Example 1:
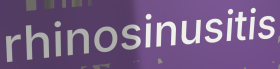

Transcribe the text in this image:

rhinosinusitis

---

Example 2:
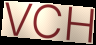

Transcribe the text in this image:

VCH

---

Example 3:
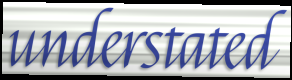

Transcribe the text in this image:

understated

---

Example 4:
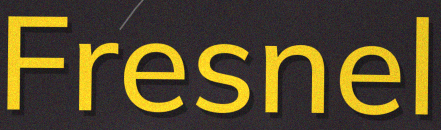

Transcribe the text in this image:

Fresnel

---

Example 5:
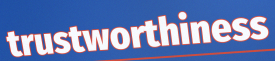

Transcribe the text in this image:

trustworthiness